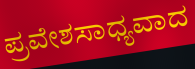
ಪ್ರವೇಶಸಾಧ್ಯವಾದ